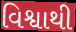
વિશ્વાથી